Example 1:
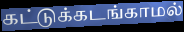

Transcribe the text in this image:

கட்டுக்கடங்காமல்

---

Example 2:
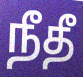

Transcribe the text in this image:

நீதீ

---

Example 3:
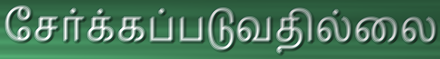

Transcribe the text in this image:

சேர்க்கப்படுவதில்லை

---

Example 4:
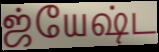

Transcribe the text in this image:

ஜ்யேஷ்ட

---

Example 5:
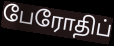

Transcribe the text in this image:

பேரோதிப்